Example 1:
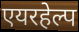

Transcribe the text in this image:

एयरहेल्प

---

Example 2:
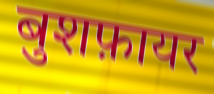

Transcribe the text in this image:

बुशफ़ायर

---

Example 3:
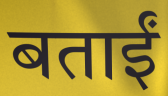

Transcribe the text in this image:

बताईं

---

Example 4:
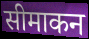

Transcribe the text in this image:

सीमाकन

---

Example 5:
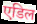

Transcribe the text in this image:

एडिल